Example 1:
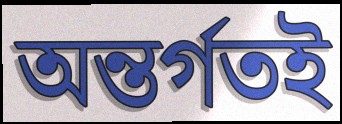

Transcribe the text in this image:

অন্তর্গতই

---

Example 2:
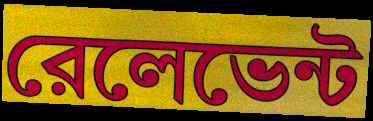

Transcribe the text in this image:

রেলেভেন্ট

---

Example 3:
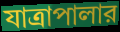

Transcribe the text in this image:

যাত্রাপালার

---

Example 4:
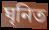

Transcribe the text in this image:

ঘৃনিত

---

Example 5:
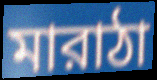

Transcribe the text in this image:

মারাঠা